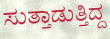
ಸುತ್ತಾಡುತ್ತಿದ್ದ